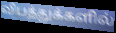
விபத்துக்களில்